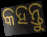
କହନ୍ତୁ